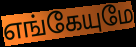
எங்கேயுமே